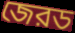
জেরড